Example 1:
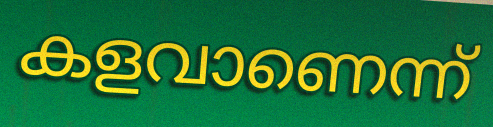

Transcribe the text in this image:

കളവാണെന്ന്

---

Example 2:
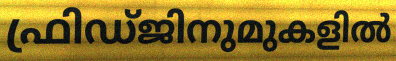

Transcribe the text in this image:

ഫ്രിഡ്ജിനുമുകളിൽ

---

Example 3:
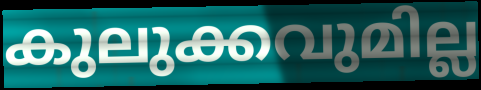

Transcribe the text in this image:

കുലുക്കവുമില്ല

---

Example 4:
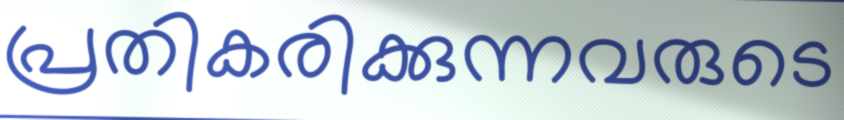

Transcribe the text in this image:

പ്രതികരിക്കുന്നവരുടെ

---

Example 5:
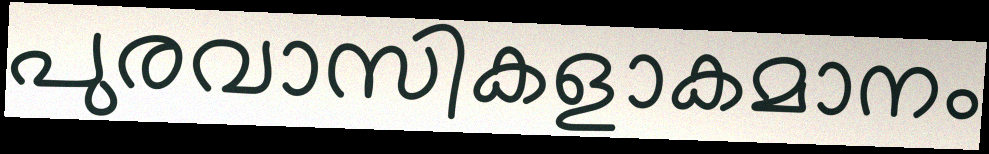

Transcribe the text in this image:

പുരവാസികളാകമാനം